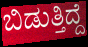
ಬಿಡುತ್ತಿದ್ದೆ